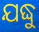
ଯଦ୍ଧୁ